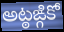
అట్ఠఙ్గికో